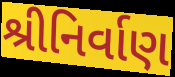
શ્રીનિર્વાણ